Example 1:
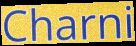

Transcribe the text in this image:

Charni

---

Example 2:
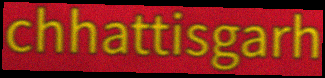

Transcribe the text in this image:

chhattisgarh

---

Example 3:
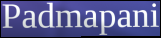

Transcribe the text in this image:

Padmapani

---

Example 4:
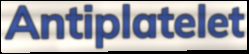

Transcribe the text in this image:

Antiplatelet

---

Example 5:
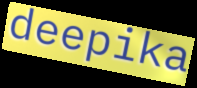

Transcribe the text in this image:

deepika